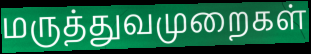
மருத்துவமுறைகள்